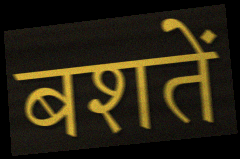
बशतें